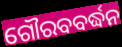
ଗୌରବବର୍ଦ୍ଧନ